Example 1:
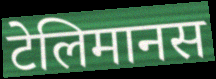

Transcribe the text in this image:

टेलिमानस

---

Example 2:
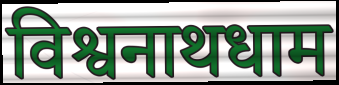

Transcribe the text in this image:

विश्वनाथधाम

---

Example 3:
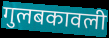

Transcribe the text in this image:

गुलबकावली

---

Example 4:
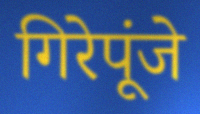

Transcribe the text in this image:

गिरेपूंजे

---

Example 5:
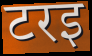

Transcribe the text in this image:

टरइ